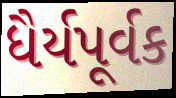
ધૈર્યપૂર્વક